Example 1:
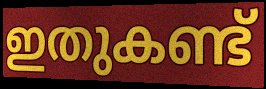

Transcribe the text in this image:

ഇതുകണ്ട്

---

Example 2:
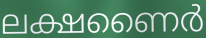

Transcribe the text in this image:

ലക്ഷണൈർ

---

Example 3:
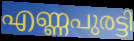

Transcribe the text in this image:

എണ്ണപുരട്ടി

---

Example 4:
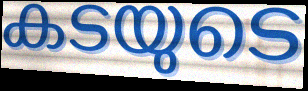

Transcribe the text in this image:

കടയുടെ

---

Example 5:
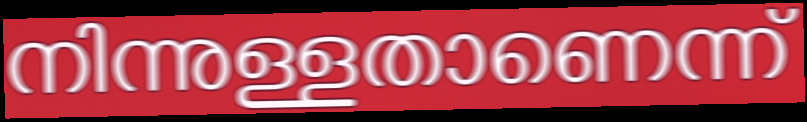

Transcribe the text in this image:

നിന്നുള്ളതാണെന്ന്